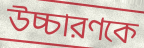
উচ্চারণকে